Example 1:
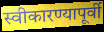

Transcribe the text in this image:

स्वीकारण्यापूर्वी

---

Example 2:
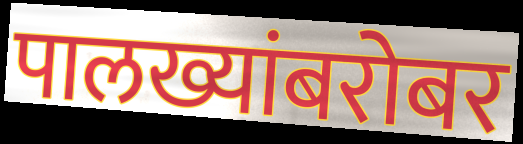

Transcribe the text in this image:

पालख्यांबरोबर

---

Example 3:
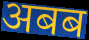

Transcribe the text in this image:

अबब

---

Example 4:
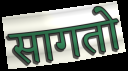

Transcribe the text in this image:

सागतो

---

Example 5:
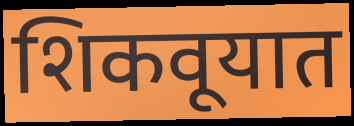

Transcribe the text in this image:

शिकवूयात